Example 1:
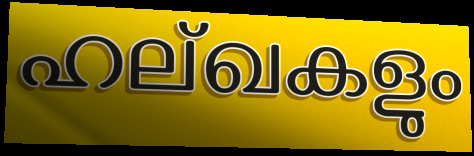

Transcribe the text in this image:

ഹല്ഖകളും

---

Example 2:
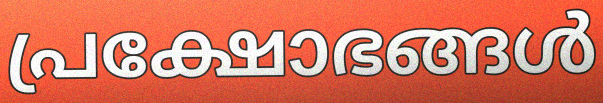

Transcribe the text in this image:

പ്രക്ഷോഭങ്ങൾ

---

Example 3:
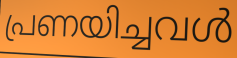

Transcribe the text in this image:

പ്രണയിച്ചവൾ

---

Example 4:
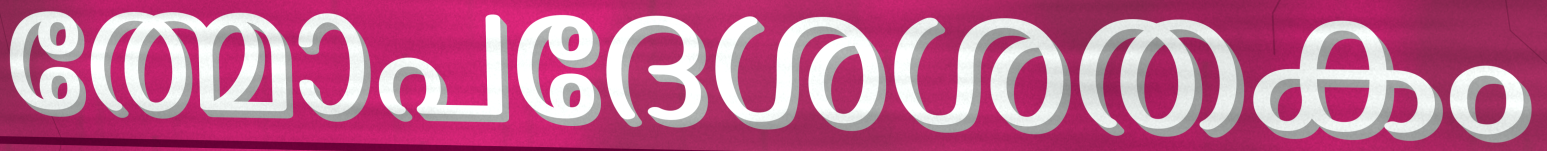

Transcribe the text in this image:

ത്മോപദേശശതകം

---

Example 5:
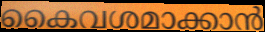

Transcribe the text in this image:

കൈവശമാക്കാൻ